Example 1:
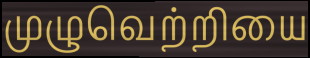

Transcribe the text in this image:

முழுவெற்றியை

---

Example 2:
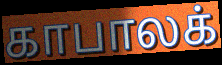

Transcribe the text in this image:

காபாலக்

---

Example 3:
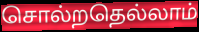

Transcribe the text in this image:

சொல்றதெல்லாம்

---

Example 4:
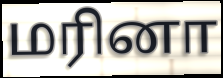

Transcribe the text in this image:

மரினா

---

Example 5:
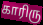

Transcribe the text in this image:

காரிரு